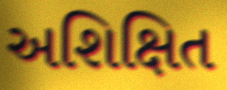
અશિક્ષિત